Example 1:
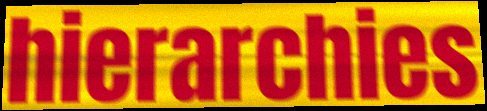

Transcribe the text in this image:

hierarchies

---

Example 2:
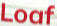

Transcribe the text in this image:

Loaf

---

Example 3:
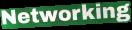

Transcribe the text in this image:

Networking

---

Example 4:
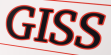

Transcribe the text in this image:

GISS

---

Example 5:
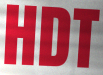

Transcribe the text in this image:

HDT